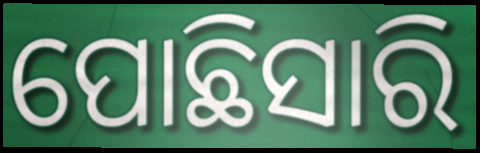
ପୋଛିସାରି